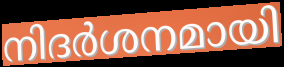
നിദർശനമായി